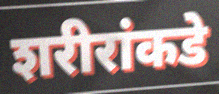
शरीरांकडे